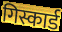
गिस्कार्ड